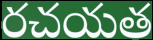
రచయత